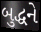
બુદ્ધને